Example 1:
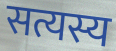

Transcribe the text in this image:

सत्यस्य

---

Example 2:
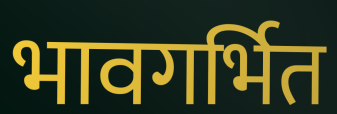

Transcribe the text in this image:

भावगर्भित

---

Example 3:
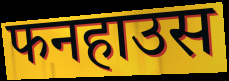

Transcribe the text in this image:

फनहाउस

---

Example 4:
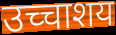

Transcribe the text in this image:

उच्चाशय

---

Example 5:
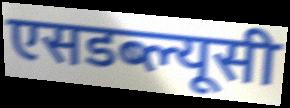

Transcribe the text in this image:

एसडब्ल्यूसी